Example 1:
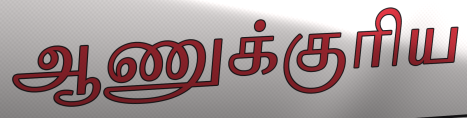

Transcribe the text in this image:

ஆணுக்குரிய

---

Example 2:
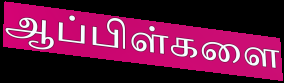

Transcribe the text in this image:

ஆப்பிள்களை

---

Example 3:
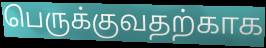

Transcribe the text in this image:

பெருக்குவதற்காக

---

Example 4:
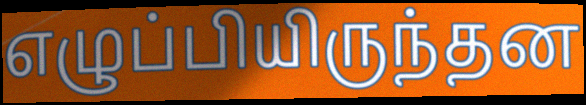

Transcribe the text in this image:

எழுப்பியிருந்தன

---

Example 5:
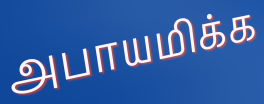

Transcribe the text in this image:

அபாயமிக்க